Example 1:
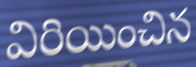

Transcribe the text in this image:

విరియించిన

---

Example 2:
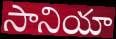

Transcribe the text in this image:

సానియా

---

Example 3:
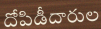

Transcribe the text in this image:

దోపిడీదారుల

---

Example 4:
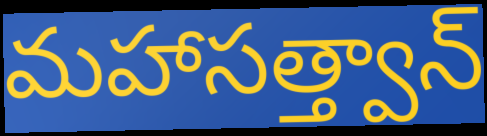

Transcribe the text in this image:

మహాసత్త్వాన్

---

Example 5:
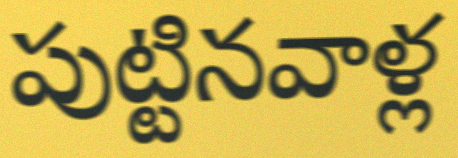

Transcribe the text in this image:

పుట్టినవాళ్ల